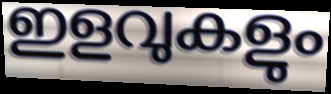
ഇളവുകളും